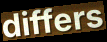
differs